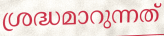
ശ്രദ്ധമാറുന്നത്